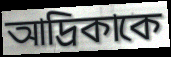
আদ্রিকাকে